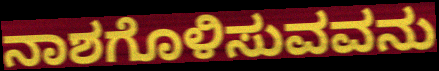
ನಾಶಗೊಳಿಸುವವನು